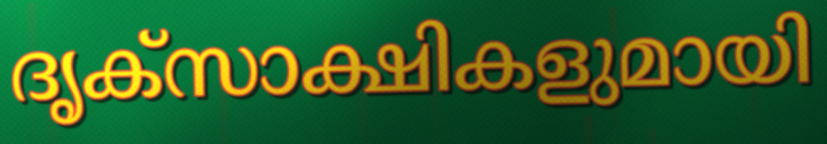
ദൃക്സാക്ഷികളുമായി